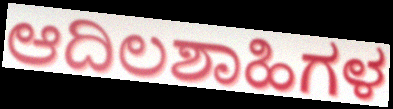
ಆದಿಲಶಾಹಿಗಳ